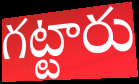
గట్టారు